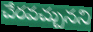
చేరవచ్చునని